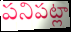
పనిపట్లా